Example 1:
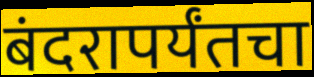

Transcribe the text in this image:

बंदरापर्यंतचा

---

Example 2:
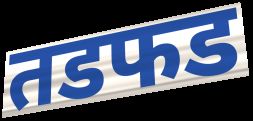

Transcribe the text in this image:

तडफड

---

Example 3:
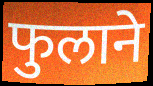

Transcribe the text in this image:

फुलाने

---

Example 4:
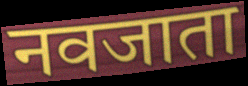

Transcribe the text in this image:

नवजाता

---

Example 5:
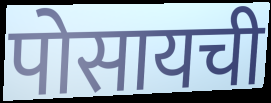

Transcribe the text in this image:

पोसायची